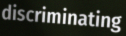
discriminating